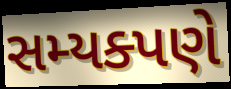
સમ્યક્પણે